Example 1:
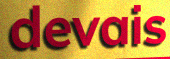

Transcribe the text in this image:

devais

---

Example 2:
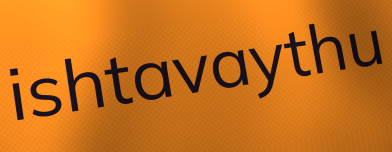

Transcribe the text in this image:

ishtavaythu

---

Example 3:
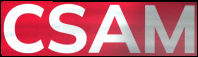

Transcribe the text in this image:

CSAM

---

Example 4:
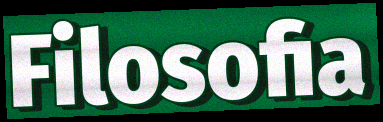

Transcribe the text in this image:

Filosofia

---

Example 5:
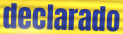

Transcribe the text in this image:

declarado